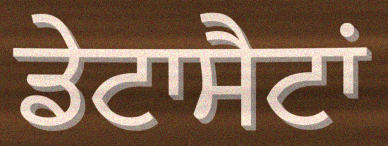
ਡੇਟਾਸੈਟਾਂ